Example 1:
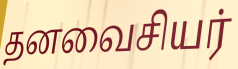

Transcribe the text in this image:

தனவைசியர்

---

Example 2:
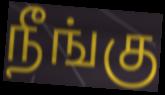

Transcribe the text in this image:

நீங்கு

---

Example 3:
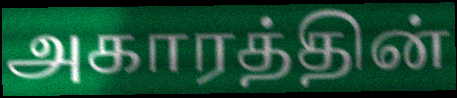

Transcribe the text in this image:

அகாரத்தின்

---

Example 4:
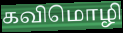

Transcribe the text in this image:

கவிமொழி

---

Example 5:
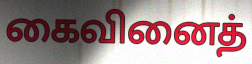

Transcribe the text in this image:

கைவினைத்